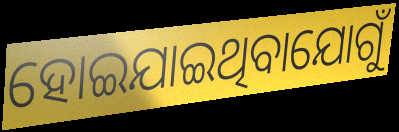
ହୋଇଯାଇଥିବାଯୋଗୁଁ